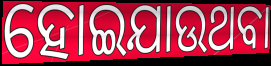
ହୋଇଯାଉଥବା